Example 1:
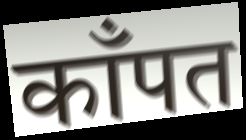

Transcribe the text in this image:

काँपत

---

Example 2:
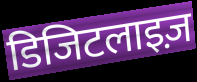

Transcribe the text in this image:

डिजिटलाइज़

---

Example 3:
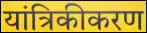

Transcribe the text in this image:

यांत्रिकीकरण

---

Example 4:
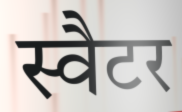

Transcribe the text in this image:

स्वैटर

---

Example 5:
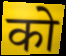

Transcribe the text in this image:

को